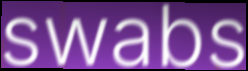
swabs